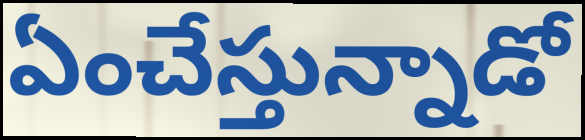
ఏంచేస్తున్నాడో